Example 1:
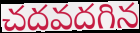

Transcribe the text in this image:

చదవదగిన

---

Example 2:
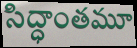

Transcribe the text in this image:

సిద్ధాంతమూ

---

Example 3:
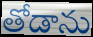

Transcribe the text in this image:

తోడాను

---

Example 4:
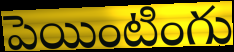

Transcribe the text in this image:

పెయింటింగు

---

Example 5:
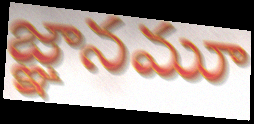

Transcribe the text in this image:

జ్ఞానమూ